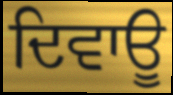
ਦਿਵਾਊ